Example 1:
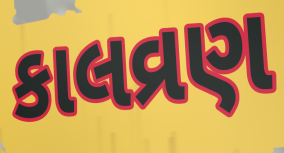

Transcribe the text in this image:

કાલવ્રણ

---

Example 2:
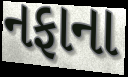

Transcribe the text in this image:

નફાના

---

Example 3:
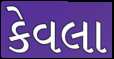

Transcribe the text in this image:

કેવલા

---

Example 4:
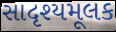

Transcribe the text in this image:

સાદૃશ્યમૂલક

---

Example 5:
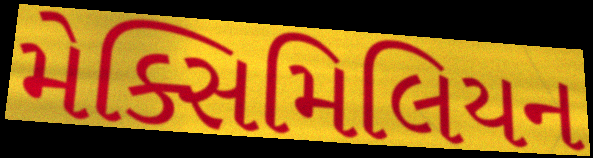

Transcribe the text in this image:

મેક્સિમિલિયન